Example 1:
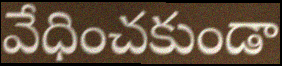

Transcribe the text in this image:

వేధించకుండా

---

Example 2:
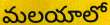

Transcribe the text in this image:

మలయాలో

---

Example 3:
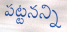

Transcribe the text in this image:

పట్టనన్ని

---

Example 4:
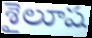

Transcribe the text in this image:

శైలూష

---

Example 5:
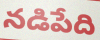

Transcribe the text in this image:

నడిపేది